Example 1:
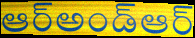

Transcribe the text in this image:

ఆర్అండ్ఆర్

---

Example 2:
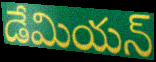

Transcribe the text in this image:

డేమియన్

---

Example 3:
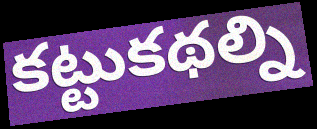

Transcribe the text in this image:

కట్టుకథల్ని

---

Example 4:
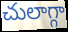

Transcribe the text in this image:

చులాగ్గా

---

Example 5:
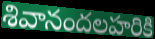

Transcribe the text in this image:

శివానందలహరికి